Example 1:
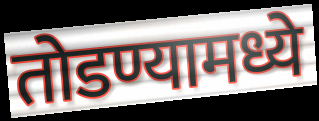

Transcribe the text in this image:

तोडण्यामध्ये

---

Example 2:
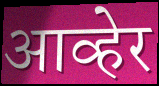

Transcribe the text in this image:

आव्हेर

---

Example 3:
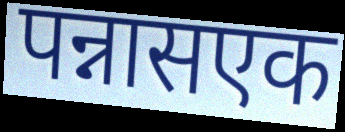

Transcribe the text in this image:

पन्नासएक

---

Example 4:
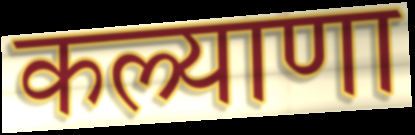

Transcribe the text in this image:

कल्याणा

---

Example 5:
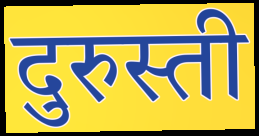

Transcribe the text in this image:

दुरुस्ती